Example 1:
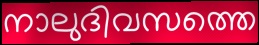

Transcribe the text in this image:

നാലുദിവസത്തെ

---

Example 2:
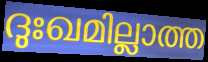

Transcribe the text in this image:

ദുഃഖമില്ലാത്ത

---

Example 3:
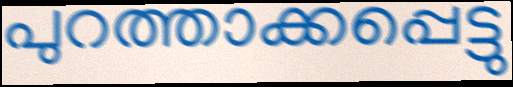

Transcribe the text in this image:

പുറത്താക്കപ്പെട്ടു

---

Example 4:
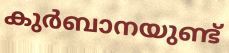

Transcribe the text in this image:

കുർബാനയുണ്ട്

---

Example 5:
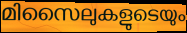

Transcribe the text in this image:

മിസൈലുകളുടെയും